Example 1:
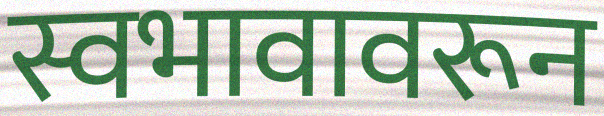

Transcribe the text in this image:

स्वभावावरून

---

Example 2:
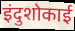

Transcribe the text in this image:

इंदुशोकाई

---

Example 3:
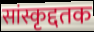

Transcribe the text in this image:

सांस्कृद्दतक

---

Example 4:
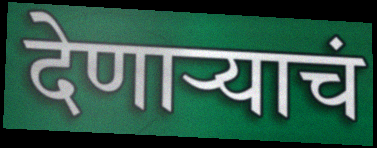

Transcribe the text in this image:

देणाऱ्याचं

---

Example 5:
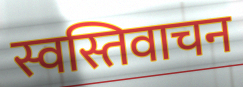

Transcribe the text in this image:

स्वस्तिवाचन